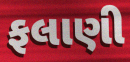
ફલાણી